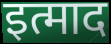
इत्माद